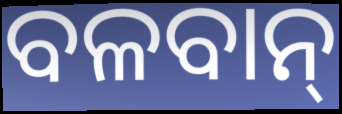
ବଳବାନ୍